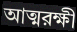
আত্মরক্ষী